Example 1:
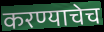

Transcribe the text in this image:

करण्याचेच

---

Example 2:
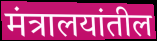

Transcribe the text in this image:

मंत्रालयांतील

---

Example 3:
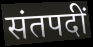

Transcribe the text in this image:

संतपदीं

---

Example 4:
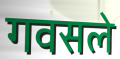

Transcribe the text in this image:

गवसले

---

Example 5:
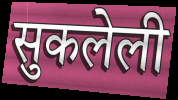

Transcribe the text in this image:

सुकलेली